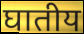
घातीय